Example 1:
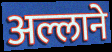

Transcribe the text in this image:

अल्लाने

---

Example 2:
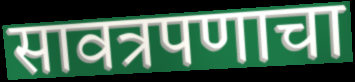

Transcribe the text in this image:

सावत्रपणाचा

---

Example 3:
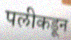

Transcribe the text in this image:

पलीकडून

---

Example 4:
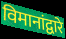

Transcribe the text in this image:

विमानांद्वारे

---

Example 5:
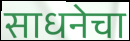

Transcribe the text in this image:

साधनेचा